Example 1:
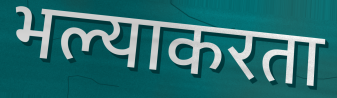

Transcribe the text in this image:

भल्याकरता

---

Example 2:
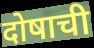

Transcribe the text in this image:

दोषाची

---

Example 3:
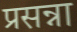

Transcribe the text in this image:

प्रसन्ना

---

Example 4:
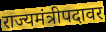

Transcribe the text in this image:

राज्यमंत्रीपदावर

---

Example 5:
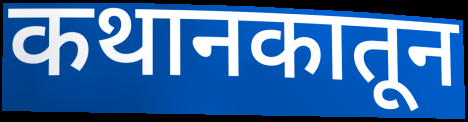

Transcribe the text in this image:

कथानकातून